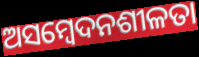
ଅସମ୍ବେଦନଶୀଳତା